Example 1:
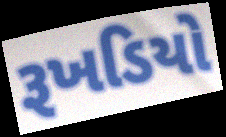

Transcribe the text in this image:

રૂખડિયો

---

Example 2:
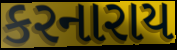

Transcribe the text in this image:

કરનારાય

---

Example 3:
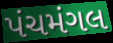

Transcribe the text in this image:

પંચમંગલ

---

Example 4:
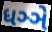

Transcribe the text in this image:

ધઞ્ઞે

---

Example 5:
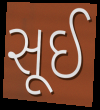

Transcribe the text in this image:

સૂઈ